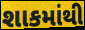
શાકમાંથી